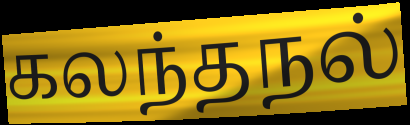
கலந்தநல்